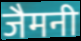
जैमनी